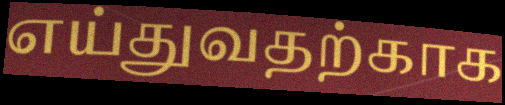
எய்துவதற்காக